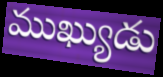
ముఖ్యుడు